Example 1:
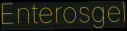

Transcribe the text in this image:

Enterosgel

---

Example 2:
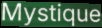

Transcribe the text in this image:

Mystique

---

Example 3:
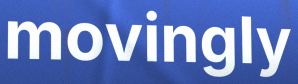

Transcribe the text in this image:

movingly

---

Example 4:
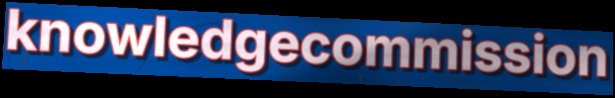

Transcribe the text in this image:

knowledgecommission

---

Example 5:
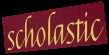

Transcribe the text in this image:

scholastic